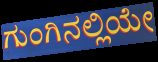
ಗುಂಗಿನಲ್ಲಿಯೇ